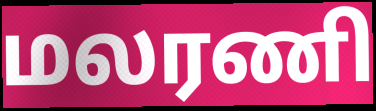
மலரணி